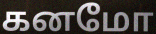
கனமோ